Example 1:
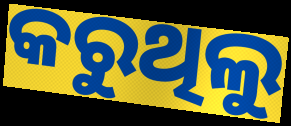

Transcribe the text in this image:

କରୁଥିଲୁ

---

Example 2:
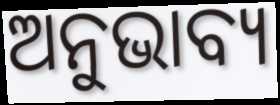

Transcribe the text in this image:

ଅନୁଭାବ୍ୟ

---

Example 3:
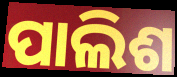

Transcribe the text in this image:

ପାଲିଶ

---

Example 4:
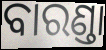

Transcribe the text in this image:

ବାରଣ୍ଡା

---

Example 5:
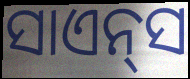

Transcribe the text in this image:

ସାଏନ୍‌ସ